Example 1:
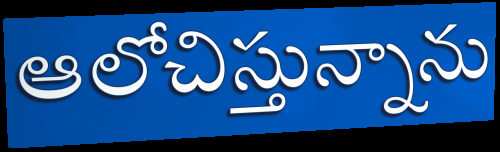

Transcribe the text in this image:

ఆలోచిస్తున్నాను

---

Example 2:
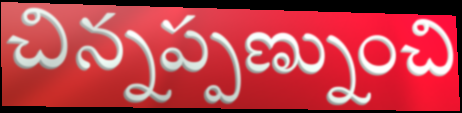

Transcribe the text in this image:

చిన్నప్పణ్నుంచి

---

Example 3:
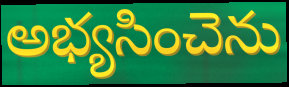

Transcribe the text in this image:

అభ్యసించెను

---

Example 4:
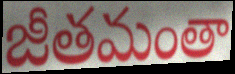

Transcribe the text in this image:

జీతమంతా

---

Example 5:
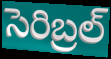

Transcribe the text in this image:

సెరిబ్రల్